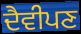
ਦੈਵੀਪਣ